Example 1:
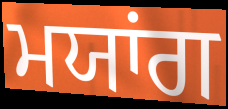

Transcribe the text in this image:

ਮਯਾਂਗ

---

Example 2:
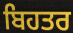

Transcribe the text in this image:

ਬਿਹਤਰ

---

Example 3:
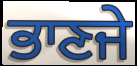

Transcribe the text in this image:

ਭਾਣਜੇ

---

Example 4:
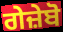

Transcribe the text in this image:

ਗੇਜ਼ੇਬੋ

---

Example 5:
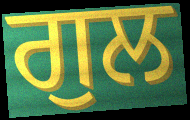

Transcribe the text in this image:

ਗੁਲ